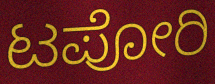
ಟಪೋರಿ